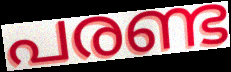
പരണ്ട